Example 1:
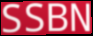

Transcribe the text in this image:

SSBN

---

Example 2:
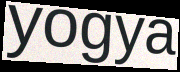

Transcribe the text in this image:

yogya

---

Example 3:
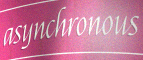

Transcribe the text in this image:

asynchronous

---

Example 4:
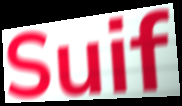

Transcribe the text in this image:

Suif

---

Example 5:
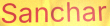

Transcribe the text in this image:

Sanchar